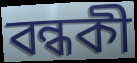
বন্ধকী